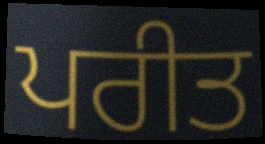
ਪਰੀਤ